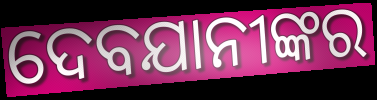
ଦେବଯାନୀଙ୍କର